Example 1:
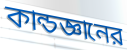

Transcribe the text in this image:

কান্ডজ্ঞানের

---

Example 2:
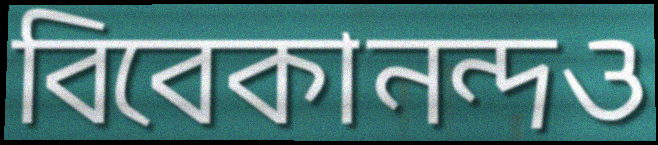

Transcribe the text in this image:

বিবেকানন্দও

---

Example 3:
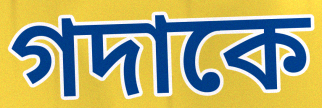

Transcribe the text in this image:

গদাকে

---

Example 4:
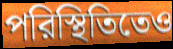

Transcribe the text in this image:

পরিস্থিতিতেও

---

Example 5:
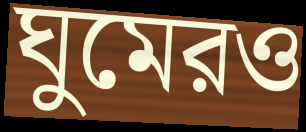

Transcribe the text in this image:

ঘুমেরও